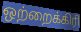
ஒற்றைக்கிரி